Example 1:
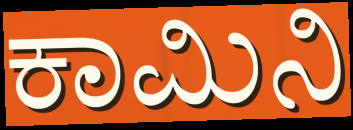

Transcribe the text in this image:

ಕಾಮಿನಿ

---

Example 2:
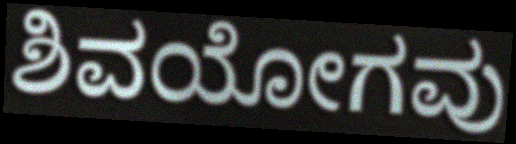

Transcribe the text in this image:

ಶಿವಯೋಗವು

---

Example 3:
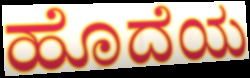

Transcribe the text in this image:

ಹೊದೆಯ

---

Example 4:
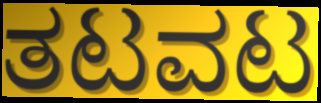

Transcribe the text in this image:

ತಟವಟ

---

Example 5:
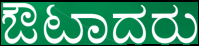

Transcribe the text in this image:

ಔಟಾದರು